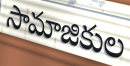
సామాజికుల